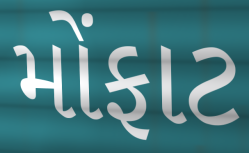
મોંફાટ